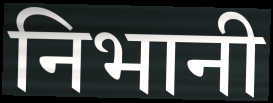
निभानी